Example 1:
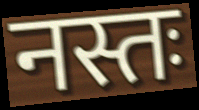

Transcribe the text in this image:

नस्तः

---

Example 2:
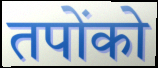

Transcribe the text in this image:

तपोंको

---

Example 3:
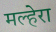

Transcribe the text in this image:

मल्हेरा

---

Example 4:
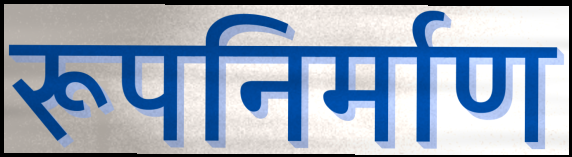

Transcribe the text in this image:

रूपनिर्माण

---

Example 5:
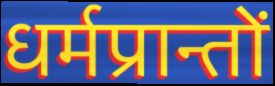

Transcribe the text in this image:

धर्मप्रान्तों